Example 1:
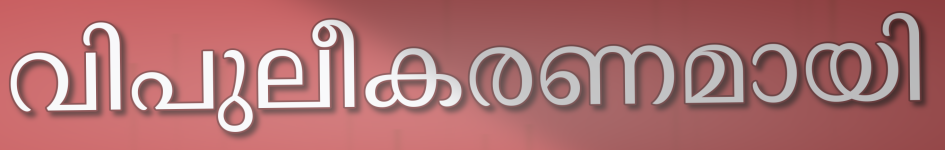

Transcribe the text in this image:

വിപുലീകരണമായി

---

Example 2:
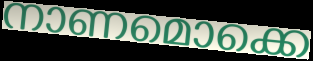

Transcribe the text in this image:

നാണമൊക്കെ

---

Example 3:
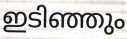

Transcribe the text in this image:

ഇടിഞ്ഞും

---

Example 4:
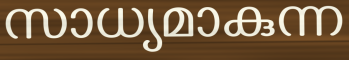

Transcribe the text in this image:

സാധ്യമാകുന്ന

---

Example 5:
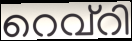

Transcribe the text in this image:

റെവ്റി